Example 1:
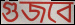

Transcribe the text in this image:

গুজবে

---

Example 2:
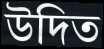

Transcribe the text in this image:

উদিত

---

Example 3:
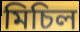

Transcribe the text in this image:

মিচিল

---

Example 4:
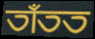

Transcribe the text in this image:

তাঁতত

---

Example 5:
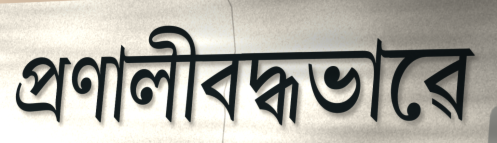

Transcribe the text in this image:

প্ৰণালীবদ্ধভাৱে